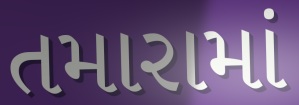
તમારામાં